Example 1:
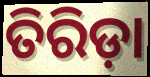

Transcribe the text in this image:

ତିରିଡ଼ା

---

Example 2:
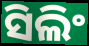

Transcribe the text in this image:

ସିଲିଂ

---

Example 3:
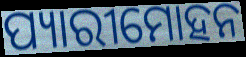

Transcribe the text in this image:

ପ୍ୟାରୀମୋହନ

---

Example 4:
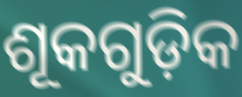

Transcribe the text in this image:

ଶୂକଗୁଡ଼ିକ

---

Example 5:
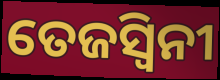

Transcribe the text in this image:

ତେଜସ୍ଵିନୀ